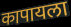
कापायला